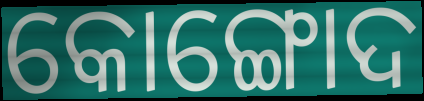
କୋଙ୍ଗୋଦ